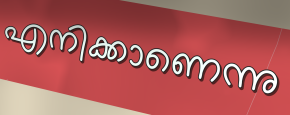
എനിക്കാണെന്നു